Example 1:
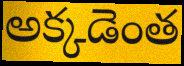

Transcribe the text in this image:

అక్కడెంత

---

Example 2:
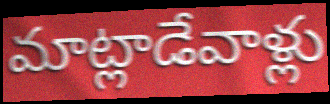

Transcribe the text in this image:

మాట్లాడేవాళ్లు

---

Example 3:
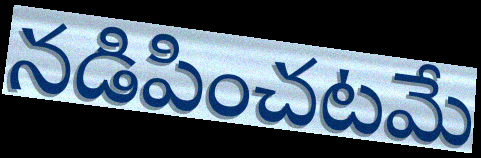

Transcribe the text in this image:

నడిపించటమే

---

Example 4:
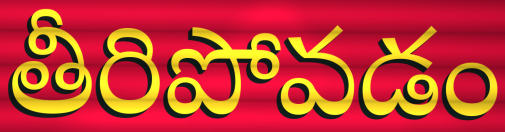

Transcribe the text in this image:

తీరిపోవడం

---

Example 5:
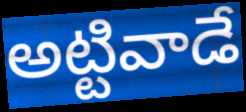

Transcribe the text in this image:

అట్టివాడే